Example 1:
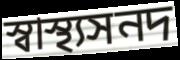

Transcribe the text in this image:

স্বাস্থ্যসনদ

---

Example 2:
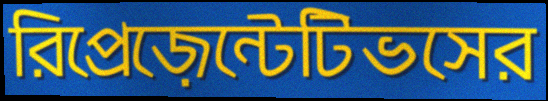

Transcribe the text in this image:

রিপ্রেজ়েন্টেটিভসের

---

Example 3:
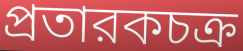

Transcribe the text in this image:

প্রতারকচক্র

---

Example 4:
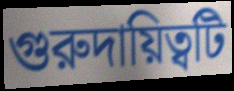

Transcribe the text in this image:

গুরুদায়িত্বটি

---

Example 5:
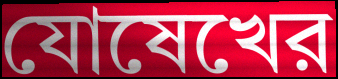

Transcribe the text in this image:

যোষেখের